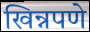
खिन्नपणे